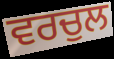
ਵਰਚੁਲ